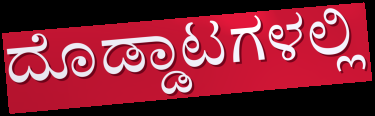
ದೊಡ್ಡಾಟಗಳಲ್ಲಿ